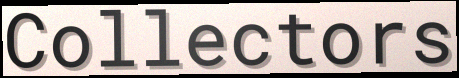
Collectors